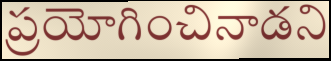
ప్రయోగించినాడని